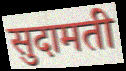
सुदामती